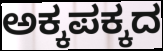
ಅಕ್ಕಪಕ್ಕದ